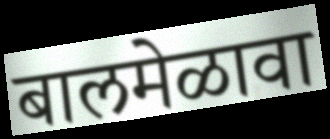
बालमेळावा